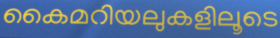
കൈമറിയലുകളിലൂടെ